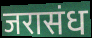
जरासंध